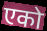
एको